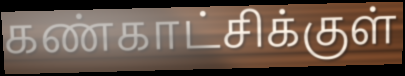
கண்காட்சிக்குள்